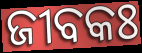
ଜୀବକଃ